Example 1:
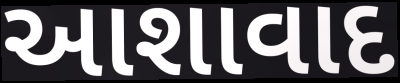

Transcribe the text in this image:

આશાવાદ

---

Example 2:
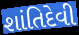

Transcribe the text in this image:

શાંતિદેવી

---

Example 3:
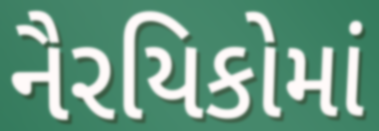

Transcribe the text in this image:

નૈરયિકોમાં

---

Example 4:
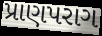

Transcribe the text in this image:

પ્રાણપરાગ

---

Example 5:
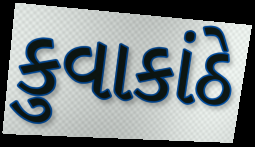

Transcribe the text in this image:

કુવાકાંઠે